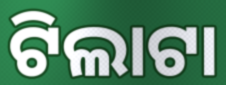
ଟିଲାଟା